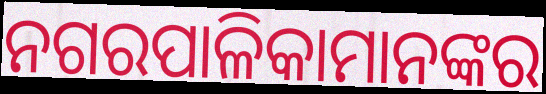
ନଗରପାଳିକାମାନଙ୍କର